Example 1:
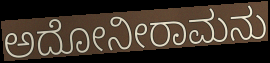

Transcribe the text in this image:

ಅದೋನೀರಾಮನು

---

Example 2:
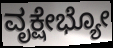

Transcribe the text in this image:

ವೃಕ್ಷೇಭ್ಯೋ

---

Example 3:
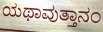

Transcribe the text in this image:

ಯಥಾವುತ್ತಾನಂ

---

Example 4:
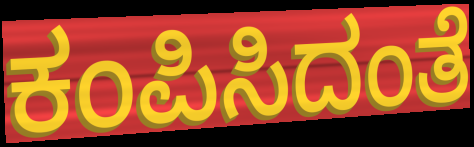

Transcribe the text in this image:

ಕಂಪಿಸಿದಂತೆ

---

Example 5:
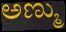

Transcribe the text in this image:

ಅಣ್ಮು